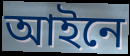
আইনে